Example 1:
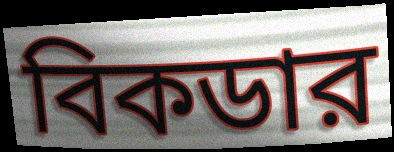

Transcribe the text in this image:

বিকডার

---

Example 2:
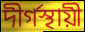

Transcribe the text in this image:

দীর্গস্থায়ী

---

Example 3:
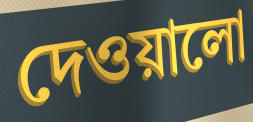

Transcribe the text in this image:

দেওয়ালো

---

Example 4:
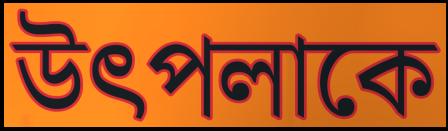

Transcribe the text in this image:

উৎপলাকে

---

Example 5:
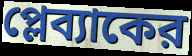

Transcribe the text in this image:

প্লেব্যাকের